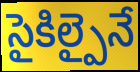
సైకిల్పైనే